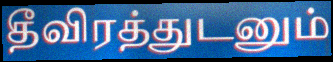
தீவிரத்துடனும்